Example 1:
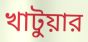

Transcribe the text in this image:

খাটুয়ার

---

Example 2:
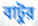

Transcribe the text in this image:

বাটুর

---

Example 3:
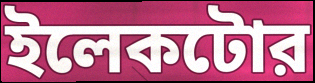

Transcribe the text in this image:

ইলেকটোর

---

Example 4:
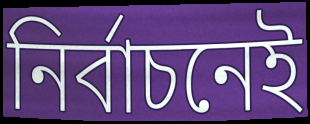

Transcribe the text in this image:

নির্বাচনেই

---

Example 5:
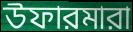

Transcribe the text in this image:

উফারমারা